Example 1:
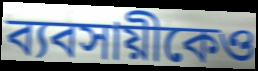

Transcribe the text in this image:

ব্যবসায়ীকেও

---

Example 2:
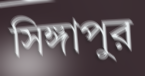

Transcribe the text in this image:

সিঙ্গাপুর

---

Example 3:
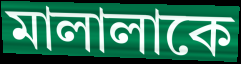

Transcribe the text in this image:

মালালাকে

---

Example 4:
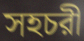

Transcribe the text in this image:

সহচরী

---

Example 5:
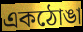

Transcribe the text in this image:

একঠোঙা